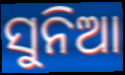
ସୁନିଆ